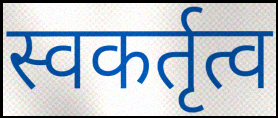
स्वकर्तृत्व